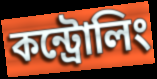
কন্ট্রোলিং